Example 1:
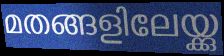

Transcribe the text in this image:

മതങ്ങളിലേയ്ക്കു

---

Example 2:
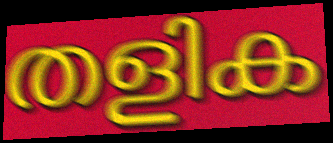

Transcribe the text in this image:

തളിക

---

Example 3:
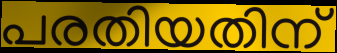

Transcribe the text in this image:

പരതിയതിന്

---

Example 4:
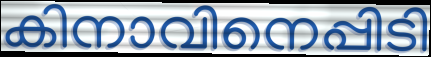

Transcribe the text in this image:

കിനാവിനെപ്പിടി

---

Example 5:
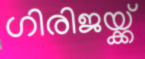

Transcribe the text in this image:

ഗിരിജയ്ക്ക്